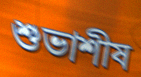
শুভাশীষ